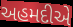
અહમદીએ